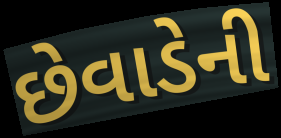
છેવાડેની